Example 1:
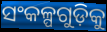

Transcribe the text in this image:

ସଂକଳ୍ପଗୁଡ଼ିକୁ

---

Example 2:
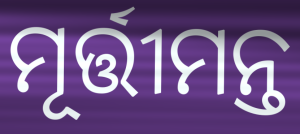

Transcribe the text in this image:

ମୂର୍ତ୍ତୀମନ୍ତ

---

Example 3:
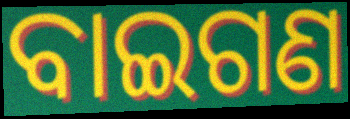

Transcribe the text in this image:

ବାଇଗଣ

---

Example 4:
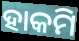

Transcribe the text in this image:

ହାକମି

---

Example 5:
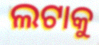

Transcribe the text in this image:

ଲଟାକୁ